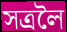
সত্ৰলৈ